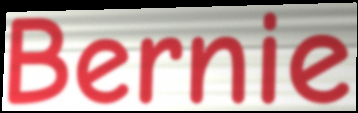
Bernie